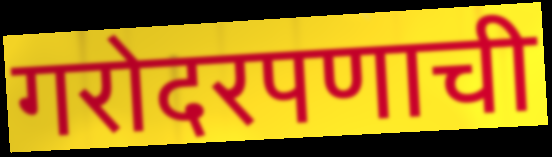
गरोदरपणाची